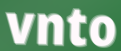
vnto